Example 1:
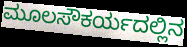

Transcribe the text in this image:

ಮೂಲಸೌಕರ್ಯದಲ್ಲಿನ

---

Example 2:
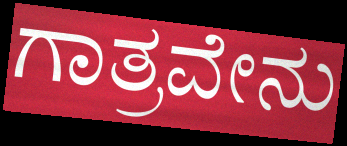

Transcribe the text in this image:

ಗಾತ್ರವೇನು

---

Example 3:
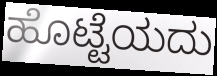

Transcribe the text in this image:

ಹೊಟ್ಟೆಯದು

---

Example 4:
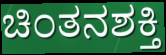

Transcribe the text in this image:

ಚಿಂತನಶಕ್ತಿ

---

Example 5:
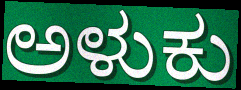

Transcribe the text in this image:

ಅಳುಕು